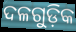
ଦଳଗୁଡ଼ିକ